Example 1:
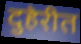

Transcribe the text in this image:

दुहेरीत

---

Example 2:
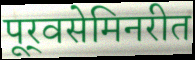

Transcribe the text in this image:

पूर्वसेमिनरीत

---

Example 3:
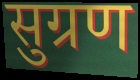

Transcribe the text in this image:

सुग्रण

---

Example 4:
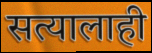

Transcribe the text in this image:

सत्यालाही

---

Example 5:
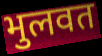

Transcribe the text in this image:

भुलवत